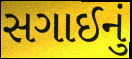
સગાઈનું